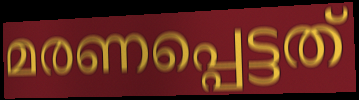
മരണപ്പെട്ടത്